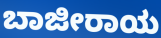
ಬಾಜೀರಾಯ